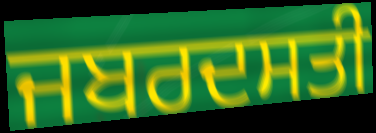
ਜਬਰਦਸਤੀ